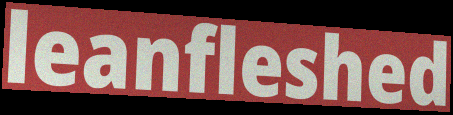
leanfleshed